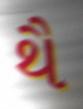
થૈ